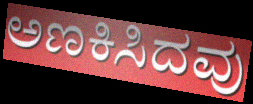
ಅಣಕಿಸಿದವು